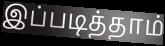
இப்படித்தாம்